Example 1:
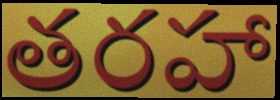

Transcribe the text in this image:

తరహా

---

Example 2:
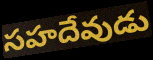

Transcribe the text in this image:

సహదేవుడు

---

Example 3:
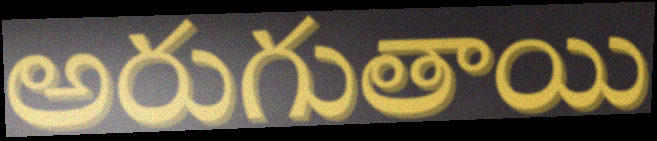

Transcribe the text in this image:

అరుగుతాయి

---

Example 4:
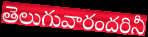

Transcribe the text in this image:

తెలుగువారందరినీ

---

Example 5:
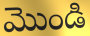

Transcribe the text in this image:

మొండి